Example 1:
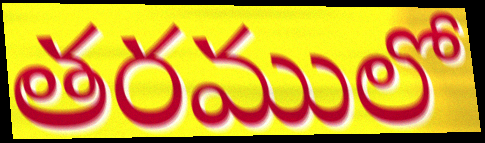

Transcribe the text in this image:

తరములో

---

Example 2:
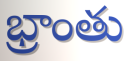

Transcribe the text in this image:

భ్రాంతు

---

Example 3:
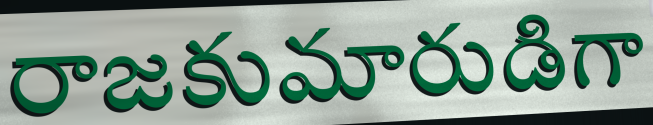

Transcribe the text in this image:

రాజకుమారుడిగా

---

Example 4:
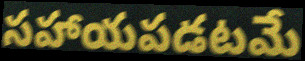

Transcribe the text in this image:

సహాయపడటమే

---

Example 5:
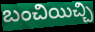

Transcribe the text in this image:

బంచియిచ్చి